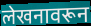
लेखनावरून